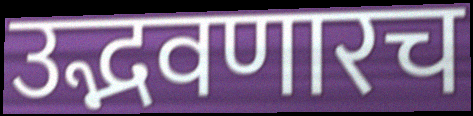
उद्भवणारच